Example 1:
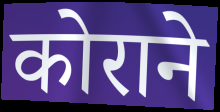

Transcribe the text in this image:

कोराने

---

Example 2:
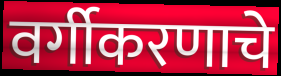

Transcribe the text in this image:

वर्गीकरणाचे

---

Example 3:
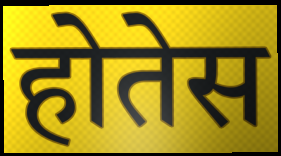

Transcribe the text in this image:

होतेस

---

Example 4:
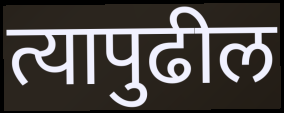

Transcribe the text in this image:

त्यापुढील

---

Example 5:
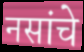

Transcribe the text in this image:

नसांचे